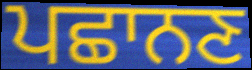
ਪਛਾਨਣ